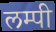
लम्पी